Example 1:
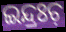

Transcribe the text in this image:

ଇନ୍ଦ୍ରଃଚ଼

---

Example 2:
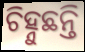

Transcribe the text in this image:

ଚିହ୍ନୁଛନ୍ତି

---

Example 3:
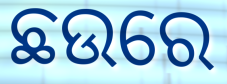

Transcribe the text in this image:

ଛଉରେ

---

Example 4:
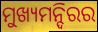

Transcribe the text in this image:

ମୁଖ୍ୟମନ୍ଦିରର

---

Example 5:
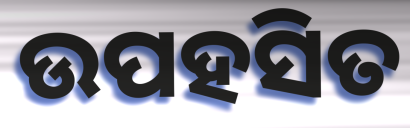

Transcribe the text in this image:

ଉପହସିତ